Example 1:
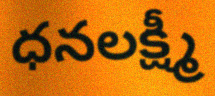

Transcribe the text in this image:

ధనలక్ష్మీ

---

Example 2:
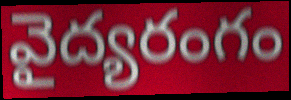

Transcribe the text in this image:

వైద్యరంగం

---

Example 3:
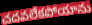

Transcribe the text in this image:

చదవలేకపోయాను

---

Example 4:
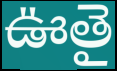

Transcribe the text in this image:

ఊతై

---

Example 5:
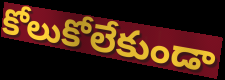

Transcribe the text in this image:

కోలుకోలేకుండా